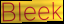
Bleek